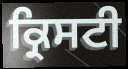
ਕ੍ਰਿਸਟੀ